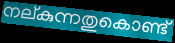
നല്കുന്നതുകൊണ്ട്